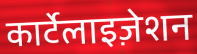
कार्टेलाइज़ेशन